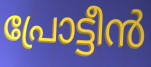
പ്രോട്ടീൻ